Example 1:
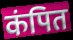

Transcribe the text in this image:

कंपित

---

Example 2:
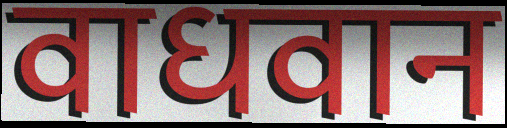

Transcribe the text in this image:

वाधवान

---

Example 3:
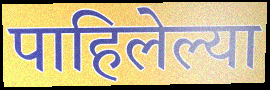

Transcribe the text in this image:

पाहिलेल्या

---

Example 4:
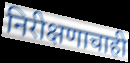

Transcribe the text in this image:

निरीक्षणाचाही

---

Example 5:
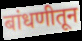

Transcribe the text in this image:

बांधणीतून